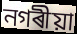
নগৰীয়া